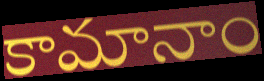
కామానాం